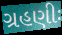
ગ્રહણીઃ